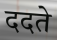
ददते